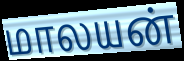
மாலயன்